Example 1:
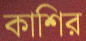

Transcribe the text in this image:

কাশির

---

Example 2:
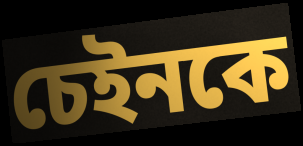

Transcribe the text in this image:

চেইনকে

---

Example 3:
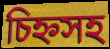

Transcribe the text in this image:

চিহ্নসহ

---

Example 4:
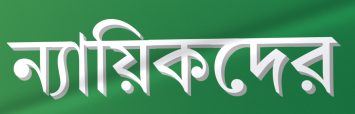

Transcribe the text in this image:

ন্যায়িকদের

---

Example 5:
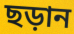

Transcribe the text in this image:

ছড়ান